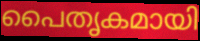
പൈതൃകമായി